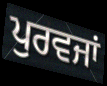
ਪੁਰਵਜਾਂ